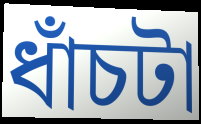
ধাঁচটা